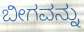
ಬೀಗವನ್ನು